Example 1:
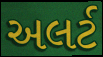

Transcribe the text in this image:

અલર્ટ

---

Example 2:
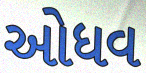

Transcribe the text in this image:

ઓધવ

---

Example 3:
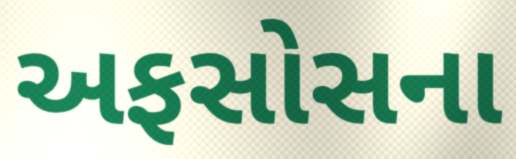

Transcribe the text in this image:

અફસોસના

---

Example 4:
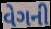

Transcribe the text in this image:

વેગની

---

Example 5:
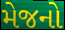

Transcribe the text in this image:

મેજનો